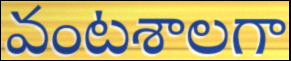
వంటశాలగా